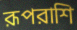
রূপরাশি